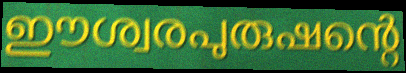
ഈശ്വരപുരുഷന്റെ